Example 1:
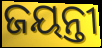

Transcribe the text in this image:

ଜୟନ୍ତୀ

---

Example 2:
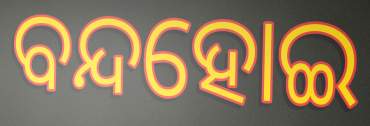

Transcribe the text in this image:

ବନ୍ଦହୋଇ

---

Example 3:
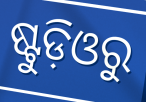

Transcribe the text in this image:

ଷ୍ଟୁଡ଼ିଓରୁ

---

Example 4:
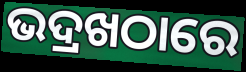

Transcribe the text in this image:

ଭଦ୍ରଖଠାରେ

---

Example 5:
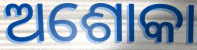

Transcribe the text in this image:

ଅଶୋକା